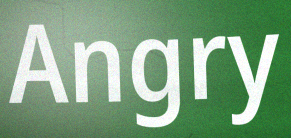
Angry